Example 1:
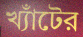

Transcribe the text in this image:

খ্যাঁটের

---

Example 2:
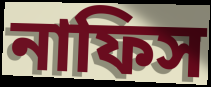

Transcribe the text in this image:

নাফিস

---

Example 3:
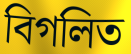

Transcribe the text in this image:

বিগলিত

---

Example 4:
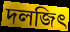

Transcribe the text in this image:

দলজিৎ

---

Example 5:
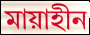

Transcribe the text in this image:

মায়াহীন